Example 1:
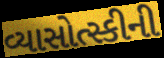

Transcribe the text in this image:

વ્યાસોત્સ્કીની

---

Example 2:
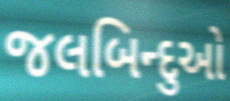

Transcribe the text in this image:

જલબિન્દુઓ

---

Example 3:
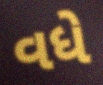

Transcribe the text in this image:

વધે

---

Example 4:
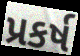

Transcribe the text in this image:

પ્રકર્ષ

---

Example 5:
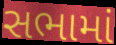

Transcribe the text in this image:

સભામાં